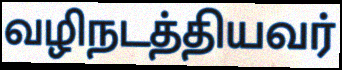
வழிநடத்தியவர்